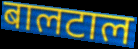
बालटाल